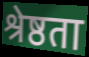
श्रेष्ठता